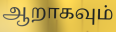
ஆறாகவும்